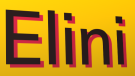
Elini